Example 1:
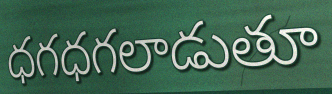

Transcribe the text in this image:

ధగధగలాడుతూ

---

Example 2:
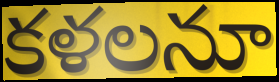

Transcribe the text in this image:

కళలనూ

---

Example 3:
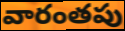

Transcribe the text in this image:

వారంతపు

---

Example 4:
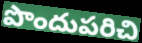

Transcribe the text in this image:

పొందుపరిచి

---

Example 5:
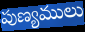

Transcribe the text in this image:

పుణ్యములు